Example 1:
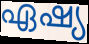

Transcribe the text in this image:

ഏഷ്യ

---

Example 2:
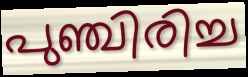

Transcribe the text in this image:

പുഞ്ചിരിച്ച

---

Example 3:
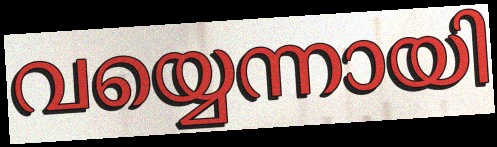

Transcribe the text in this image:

വയ്യെന്നായി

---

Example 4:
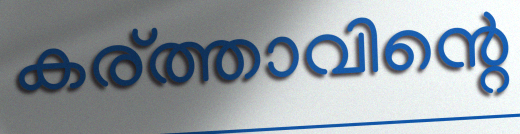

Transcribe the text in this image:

കര്ത്താവിന്റെ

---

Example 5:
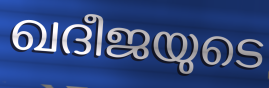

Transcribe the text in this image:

ഖദീജയുടെ